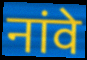
नांवे